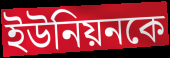
ইউনিয়নকে